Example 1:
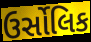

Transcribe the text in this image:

ઉર્સોલિક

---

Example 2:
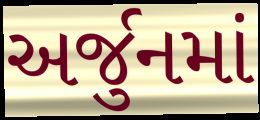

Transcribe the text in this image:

અર્જુનમાં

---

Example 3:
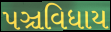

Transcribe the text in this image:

પઞ્ચવિધાય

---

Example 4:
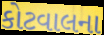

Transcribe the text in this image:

કોટવાલના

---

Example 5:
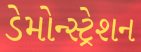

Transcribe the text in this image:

ડેમોન્સ્ટ્રેશન